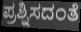
ಪ್ರಶ್ನಿಸದಂತೆ